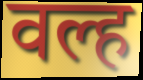
वल्ह